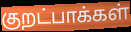
குறட்பாக்கள்